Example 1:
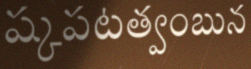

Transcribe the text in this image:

ష్కపటత్వంబున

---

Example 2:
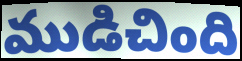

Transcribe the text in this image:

ముడిచింది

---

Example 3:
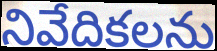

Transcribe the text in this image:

నివేదికలను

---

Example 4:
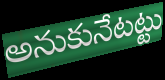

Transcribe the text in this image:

అనుకునేటట్టు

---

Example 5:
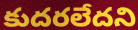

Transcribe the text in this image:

కుదరలేదని